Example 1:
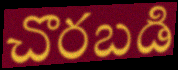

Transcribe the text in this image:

చొరబడి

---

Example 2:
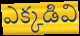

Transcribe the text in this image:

ఎక్కడివి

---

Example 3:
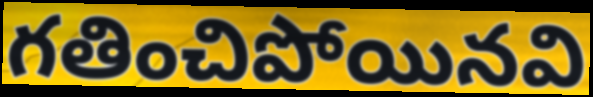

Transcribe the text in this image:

గతించిపోయినవి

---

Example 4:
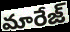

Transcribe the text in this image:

మారేజ్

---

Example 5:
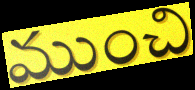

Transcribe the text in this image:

ముంచి